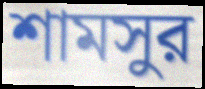
শামসুর